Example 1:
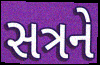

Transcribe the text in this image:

સત્રને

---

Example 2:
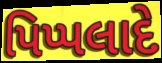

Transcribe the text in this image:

પિપ્પલાદે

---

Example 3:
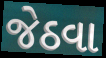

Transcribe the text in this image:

જેઠવા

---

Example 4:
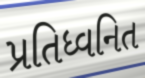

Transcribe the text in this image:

પ્રતિધ્વનિત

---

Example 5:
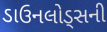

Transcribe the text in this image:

ડાઉનલોડ્સની